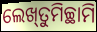
ଲେଖ୍‌ତୁମିଚ୍ଛାମି